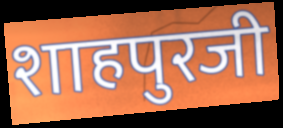
शाहपुरजी